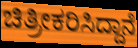
ಚಿತ್ರೀಕರಿಸಿದ್ದಾನೆ